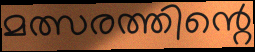
മത്സരത്തിന്റെ